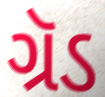
ગ્રૅડ